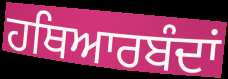
ਹਥਿਆਰਬੰਦਾਂ